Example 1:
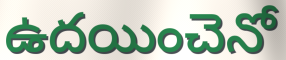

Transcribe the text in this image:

ఉదయించెనో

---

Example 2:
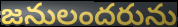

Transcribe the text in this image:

జనులందరును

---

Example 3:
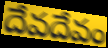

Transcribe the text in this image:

దేవదేవం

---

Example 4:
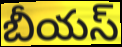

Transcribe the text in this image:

బీయస్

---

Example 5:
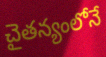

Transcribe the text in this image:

చైతన్యంలోనే